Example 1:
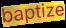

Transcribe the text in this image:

baptize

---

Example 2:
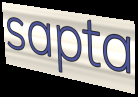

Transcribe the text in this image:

sapta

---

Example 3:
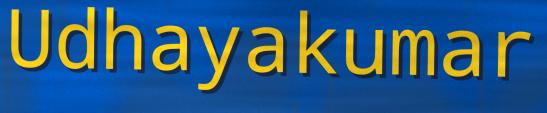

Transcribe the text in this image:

Udhayakumar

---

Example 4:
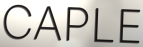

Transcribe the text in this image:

CAPLE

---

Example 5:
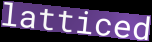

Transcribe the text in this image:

latticed